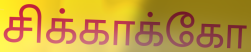
சிக்காக்கோ